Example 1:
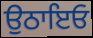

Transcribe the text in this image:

ਉਠਾਇਓ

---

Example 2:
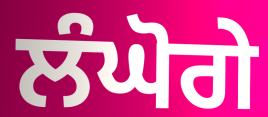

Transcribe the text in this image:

ਲੰਘੋਗੇ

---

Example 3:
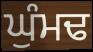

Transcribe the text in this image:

ਘੁੰਮਢ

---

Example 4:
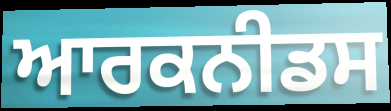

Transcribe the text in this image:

ਆਰਕਨੀਡਸ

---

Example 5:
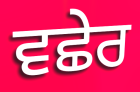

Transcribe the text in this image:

ਵਛੇਰ